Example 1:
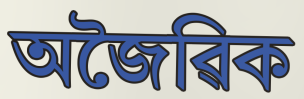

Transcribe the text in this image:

অজৈৱিক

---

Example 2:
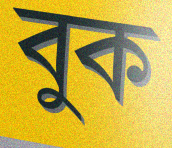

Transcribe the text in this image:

বুক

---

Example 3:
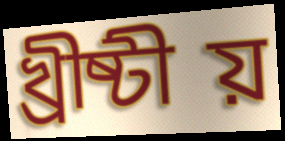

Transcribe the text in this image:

খ্ৰীষ্টীয়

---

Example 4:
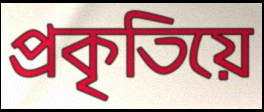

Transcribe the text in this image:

প্ৰকৃতিয়ে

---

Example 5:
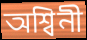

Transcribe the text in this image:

অশ্বিনী